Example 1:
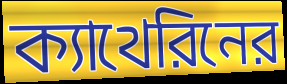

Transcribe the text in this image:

ক্যাথেরিনের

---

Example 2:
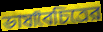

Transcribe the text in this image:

ভাষাবৈচিত্রের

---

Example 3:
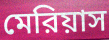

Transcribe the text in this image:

মেরিয়াস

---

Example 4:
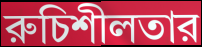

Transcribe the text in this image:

রুচিশীলতার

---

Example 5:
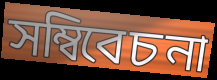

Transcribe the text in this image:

সম্বিবেচনা